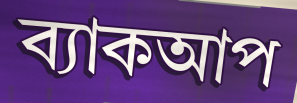
ব্যাকআপ